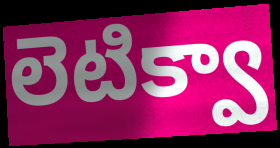
లెటిక్వా